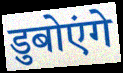
डुबोएंगे